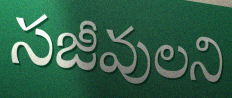
సజీవులని